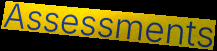
Assessments